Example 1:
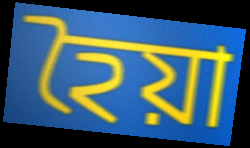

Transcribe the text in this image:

হৈয়া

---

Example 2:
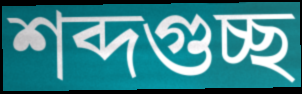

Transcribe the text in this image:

শব্দগুচ্ছ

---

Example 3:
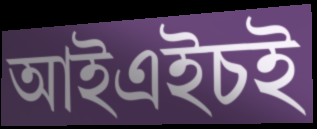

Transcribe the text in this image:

আইএইচই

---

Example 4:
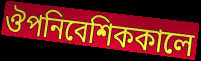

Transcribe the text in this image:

ঔপনিবেশিককালে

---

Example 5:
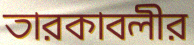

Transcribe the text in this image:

তারকাবলীর